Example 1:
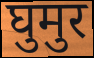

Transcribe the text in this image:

घुमुर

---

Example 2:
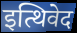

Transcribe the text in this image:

इत्थिवेद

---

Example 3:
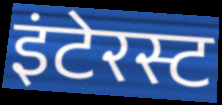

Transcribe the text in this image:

इंटेरस्ट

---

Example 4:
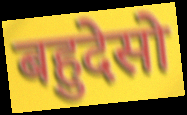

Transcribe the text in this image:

बहुदेसो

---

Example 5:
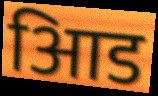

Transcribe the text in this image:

आिड